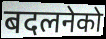
बदलनेको